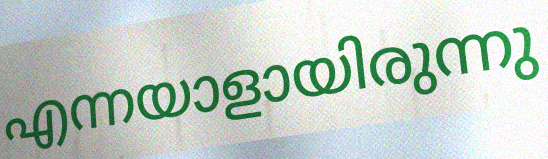
എന്നയാളായിരുന്നു